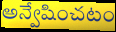
అన్వేషించటం